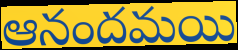
ఆనందమయి